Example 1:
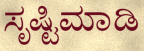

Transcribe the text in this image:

ಸೃಷ್ಟಿಮಾಡಿ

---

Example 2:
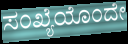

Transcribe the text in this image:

ಸಂಖ್ಯೆಯೊಂದೇ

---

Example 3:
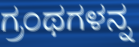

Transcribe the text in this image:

ಗ್ರಂಥಗಳನ್ನ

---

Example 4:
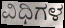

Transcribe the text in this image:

ವಿಧಿಗಳ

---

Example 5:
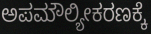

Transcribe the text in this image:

ಅಪಮೌಲ್ಯೀಕರಣಕ್ಕೆ